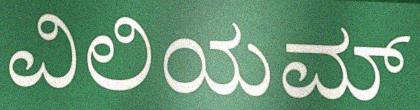
ವಿಲಿಯಮ್